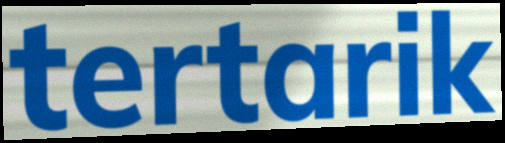
tertarik